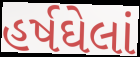
હર્ષઘેલાં